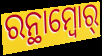
ରନ୍ଥାମ୍ବୋର୍